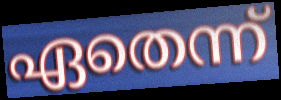
ഏതെന്ന്